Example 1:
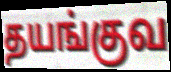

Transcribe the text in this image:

தயங்குவ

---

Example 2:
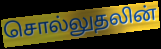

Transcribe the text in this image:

சொல்லுதலின்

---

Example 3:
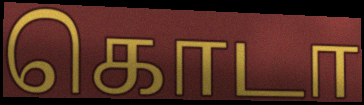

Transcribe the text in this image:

கொடா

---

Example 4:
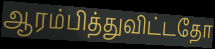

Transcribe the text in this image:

ஆரம்பித்துவிட்டதோ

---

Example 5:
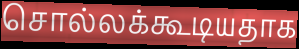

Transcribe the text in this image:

சொல்லக்கூடியதாக